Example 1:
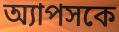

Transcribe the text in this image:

অ্যাপসকে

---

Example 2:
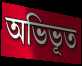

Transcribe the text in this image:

অভিভূত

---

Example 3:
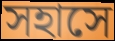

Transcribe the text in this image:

সহাসে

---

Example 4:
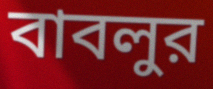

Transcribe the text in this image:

বাবলুর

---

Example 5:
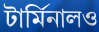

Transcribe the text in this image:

টার্মিনালও